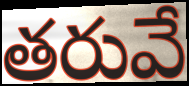
తరువే